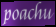
poachu